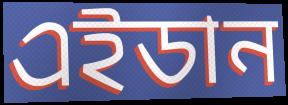
এইডান